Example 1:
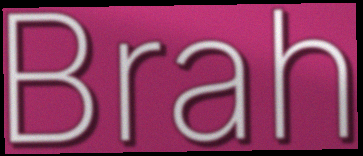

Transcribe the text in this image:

Brah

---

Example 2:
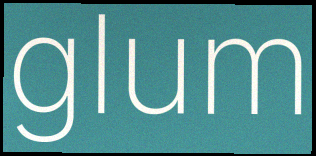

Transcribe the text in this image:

glum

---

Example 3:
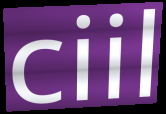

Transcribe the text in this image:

ciil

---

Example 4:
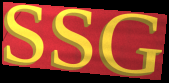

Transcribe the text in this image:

SSG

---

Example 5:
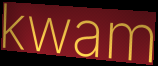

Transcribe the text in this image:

kwam